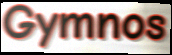
Gymnos